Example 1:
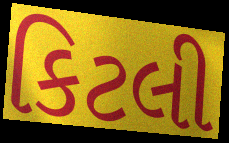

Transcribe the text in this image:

કિટલી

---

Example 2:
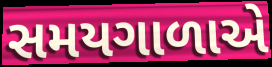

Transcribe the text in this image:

સમયગાળાએ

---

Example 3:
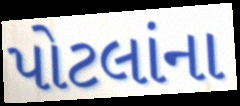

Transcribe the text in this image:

પોટલાંના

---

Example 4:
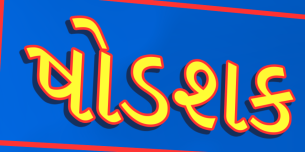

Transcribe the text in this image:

ષોડશક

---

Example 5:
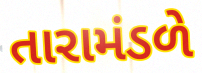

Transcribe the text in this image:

તારામંડળે